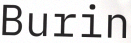
Burin